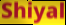
Shiyal